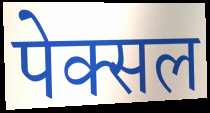
पेक्सल